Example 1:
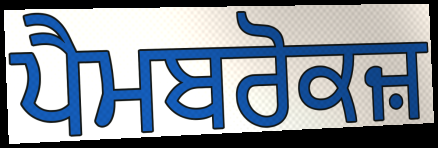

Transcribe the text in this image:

ਪੈਮਬਰੋਕਜ਼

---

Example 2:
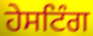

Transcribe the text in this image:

ਹੇਸਟਿੰਗ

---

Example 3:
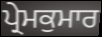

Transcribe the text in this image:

ਪ੍ਰੇਮਕੁਮਾਰ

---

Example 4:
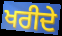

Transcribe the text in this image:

ਖਰੀਦੇ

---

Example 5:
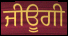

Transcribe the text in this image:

ਜੀਊਗੀ